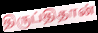
திருப்திதான்